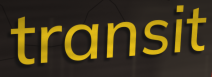
transit